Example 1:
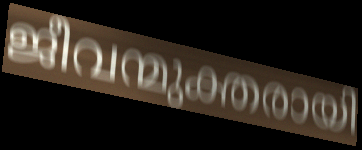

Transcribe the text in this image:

ജീവന്മുക്തരായി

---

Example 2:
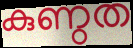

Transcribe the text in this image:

കുണ്ഠത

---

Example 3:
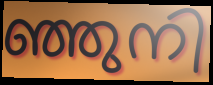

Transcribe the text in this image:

ഞ്ഞുനി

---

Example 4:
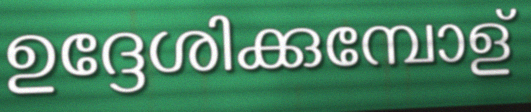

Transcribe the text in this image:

ഉദ്ദേശിക്കുമ്പോള്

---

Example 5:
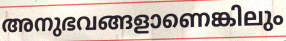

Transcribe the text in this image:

അനുഭവങ്ങളാണെങ്കിലും